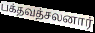
பக்தவத்சலனார்